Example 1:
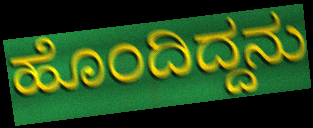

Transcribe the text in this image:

ಹೊಂದಿದ್ದನು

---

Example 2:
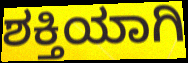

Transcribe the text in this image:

ಶಕ್ತಿಯಾಗಿ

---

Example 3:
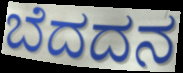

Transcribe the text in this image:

ಬೆದದನ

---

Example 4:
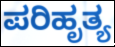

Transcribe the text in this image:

ಪರಿಹೃತ್ಯ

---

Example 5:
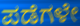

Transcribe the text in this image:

ಪಡೆಗಳೇ